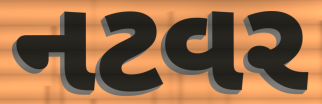
નટવર